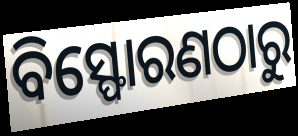
ବିସ୍ଫୋରଣଠାରୁ